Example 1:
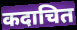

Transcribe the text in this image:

कदाचित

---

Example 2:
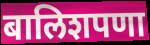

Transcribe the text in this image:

बालिशपणा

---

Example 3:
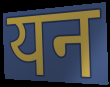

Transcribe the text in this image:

यन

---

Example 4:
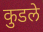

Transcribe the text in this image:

कुडले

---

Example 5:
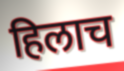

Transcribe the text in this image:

हिलाच